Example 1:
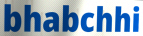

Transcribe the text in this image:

bhabchhi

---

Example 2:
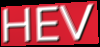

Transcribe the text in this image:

HEV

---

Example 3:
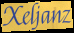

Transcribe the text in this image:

Xeljanz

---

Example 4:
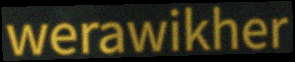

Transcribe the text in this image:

werawikher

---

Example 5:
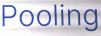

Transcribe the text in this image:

Pooling